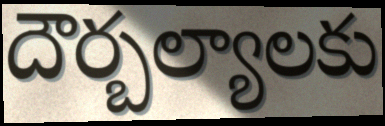
దౌర్బల్యాలకు